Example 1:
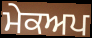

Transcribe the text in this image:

ਮੇਕਅਪ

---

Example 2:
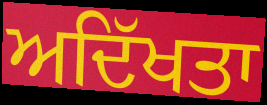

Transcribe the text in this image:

ਅਦਿੱਖਤਾ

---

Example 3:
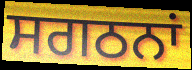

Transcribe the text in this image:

ਸਗਠਨਾਂ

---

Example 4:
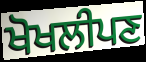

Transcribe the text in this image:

ਖੋਖਲੀਪਣ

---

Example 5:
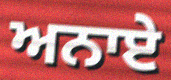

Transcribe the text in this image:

ਅਨਾਏ